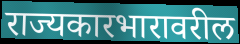
राज्यकारभारावरील